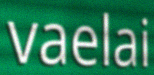
vaelai